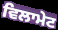
ਵਿਲਾਮੇਟ